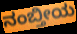
ನಂಬ್ತೀಯ